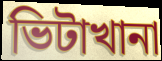
ভিটাখানা